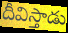
దీవిస్తాడు